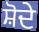
ਸ਼ੋਦੇ